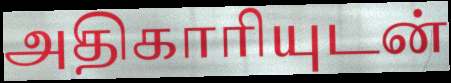
அதிகாரியுடன்